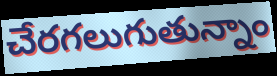
చేరగలుగుతున్నాం